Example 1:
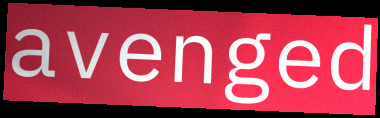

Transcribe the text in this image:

avenged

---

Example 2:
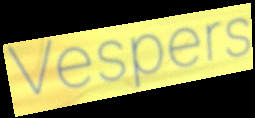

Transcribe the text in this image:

Vespers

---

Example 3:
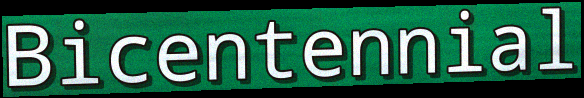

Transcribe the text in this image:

Bicentennial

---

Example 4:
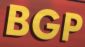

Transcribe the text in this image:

BGP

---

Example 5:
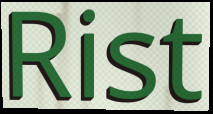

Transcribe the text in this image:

Rist